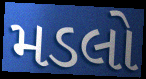
મડલો